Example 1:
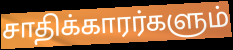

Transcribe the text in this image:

சாதிக்காரர்களும்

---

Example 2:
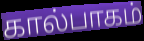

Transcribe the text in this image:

கால்பாகம்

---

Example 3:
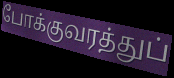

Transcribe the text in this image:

போக்குவரத்துப்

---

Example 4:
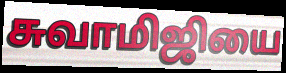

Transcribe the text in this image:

சுவாமிஜியை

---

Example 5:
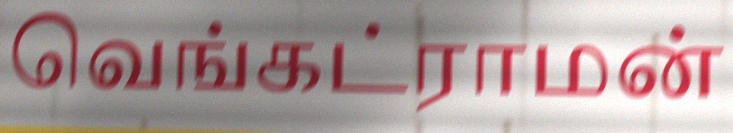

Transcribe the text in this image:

வெங்கட்ராமன்